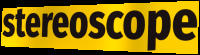
stereoscope